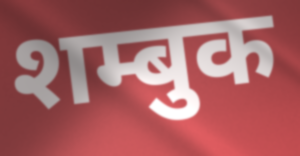
शम्बुक